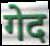
गेद